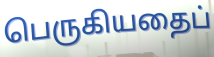
பெருகியதைப்